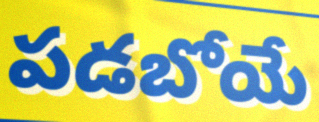
పడబోయే